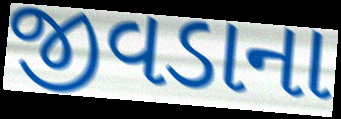
જીવડાના